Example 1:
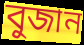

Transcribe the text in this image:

বুজান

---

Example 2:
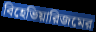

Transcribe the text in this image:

বিহেভিয়ারিজমের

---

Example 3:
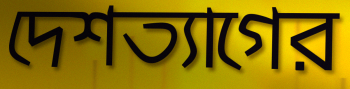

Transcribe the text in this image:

দেশত্যাগের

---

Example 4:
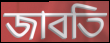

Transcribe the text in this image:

জাবতি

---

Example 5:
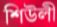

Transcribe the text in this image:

শিউলী